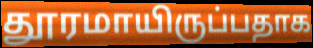
தூரமாயிருப்பதாக